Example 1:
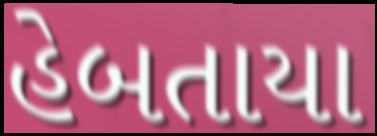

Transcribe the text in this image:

હેબતાયા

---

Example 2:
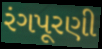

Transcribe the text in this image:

રંગપૂરણી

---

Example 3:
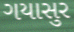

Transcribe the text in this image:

ગયાસુર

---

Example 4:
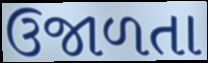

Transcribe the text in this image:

ઉજાળતા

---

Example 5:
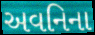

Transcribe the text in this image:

અવનિના